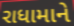
રાધામાને